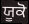
ਯੂਕੋ